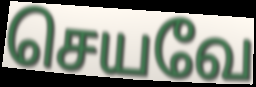
செயவே